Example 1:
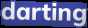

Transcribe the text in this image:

darting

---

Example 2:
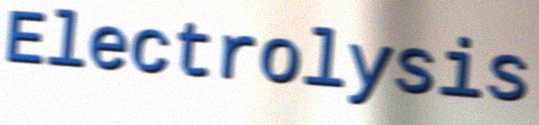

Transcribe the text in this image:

Electrolysis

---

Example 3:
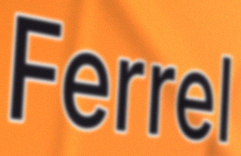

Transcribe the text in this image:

Ferrel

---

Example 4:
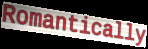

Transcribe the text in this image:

Romantically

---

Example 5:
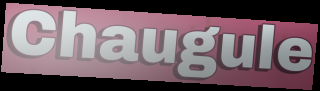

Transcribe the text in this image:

Chaugule